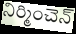
నిర్మించెన్